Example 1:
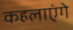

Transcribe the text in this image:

कहलाएंगे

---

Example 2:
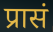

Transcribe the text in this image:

प्रासं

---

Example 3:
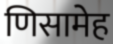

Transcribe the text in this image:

णिसामेह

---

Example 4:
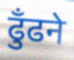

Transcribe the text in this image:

ढुँढने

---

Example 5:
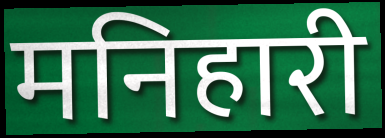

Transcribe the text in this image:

मनिहारी